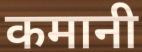
कमानी